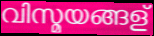
വിസ്മയങ്ങള്